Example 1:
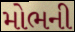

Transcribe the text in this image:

મોભની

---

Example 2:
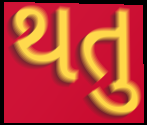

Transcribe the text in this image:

થતુ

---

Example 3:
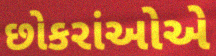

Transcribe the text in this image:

છોકરાંઓએ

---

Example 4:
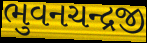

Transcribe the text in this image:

ભુવનચન્દ્રજી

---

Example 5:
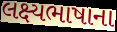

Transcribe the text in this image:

લક્ષ્યભાષાના